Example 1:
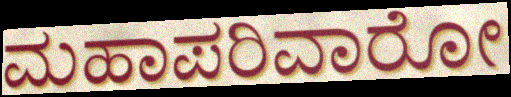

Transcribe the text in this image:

ಮಹಾಪರಿವಾರೋ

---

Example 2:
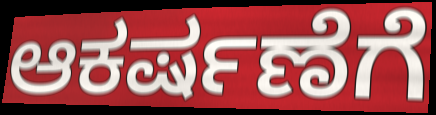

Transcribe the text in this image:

ಆಕರ್ಷಣೆಗೆ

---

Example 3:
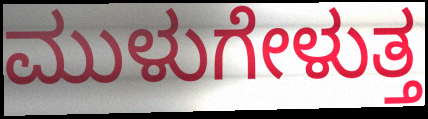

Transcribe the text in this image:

ಮುಳುಗೇಳುತ್ತ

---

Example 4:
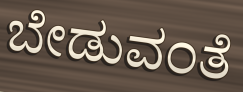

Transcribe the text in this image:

ಬೇಡುವಂತೆ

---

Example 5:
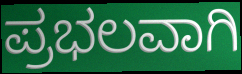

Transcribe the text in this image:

ಪ್ರಭಲವಾಗಿ